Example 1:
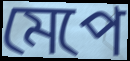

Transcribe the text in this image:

মেপে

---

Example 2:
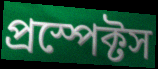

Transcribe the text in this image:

প্রস্পেক্টস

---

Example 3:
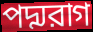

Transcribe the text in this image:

পদ্মরাগ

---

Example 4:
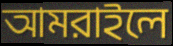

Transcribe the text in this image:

আমরাইলে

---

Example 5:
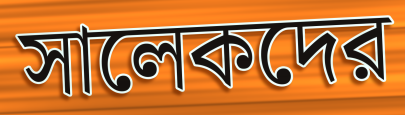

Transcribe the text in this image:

সালেকদের